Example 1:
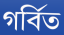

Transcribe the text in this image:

গর্বিত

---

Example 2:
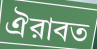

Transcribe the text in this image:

ঐরাবত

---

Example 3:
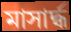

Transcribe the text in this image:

মাসার্দ্ধ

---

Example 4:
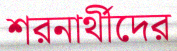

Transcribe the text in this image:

শরনার্থীদের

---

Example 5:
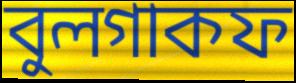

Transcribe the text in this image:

বুলগাকফ